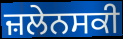
ਜ਼ਲੇਨਸਕੀ